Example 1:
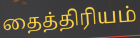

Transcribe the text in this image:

தைத்திரியம்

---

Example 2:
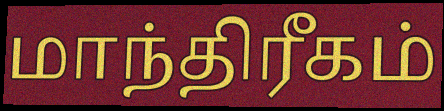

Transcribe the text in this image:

மாந்திரீகம்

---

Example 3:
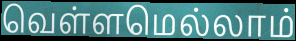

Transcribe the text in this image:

வெள்ளமெல்லாம்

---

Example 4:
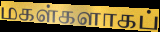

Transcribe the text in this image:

மகள்களாகப்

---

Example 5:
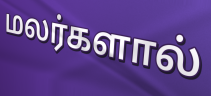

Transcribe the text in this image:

மலர்களால்